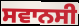
ਸਵਾਨਸੀ